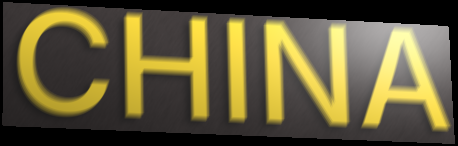
CHINA